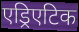
एड्रिएटिक